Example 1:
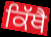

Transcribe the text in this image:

ਕਿੱਥੈ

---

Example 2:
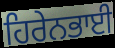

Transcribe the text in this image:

ਹਿਰੇਨਭਾਈ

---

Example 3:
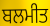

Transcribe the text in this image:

ਬਲਮੀਤ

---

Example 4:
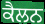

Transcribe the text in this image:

ਕੈਲਨ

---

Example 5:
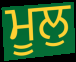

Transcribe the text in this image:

ਮੂਲੁ